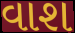
વાશ